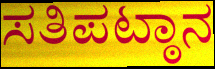
ಸತಿಪಟ್ಠಾನ